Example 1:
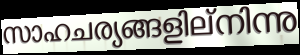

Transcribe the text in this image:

സാഹചര്യങ്ങളില്നിന്നു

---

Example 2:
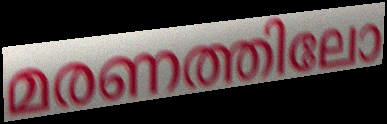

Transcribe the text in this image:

മരണത്തിലോ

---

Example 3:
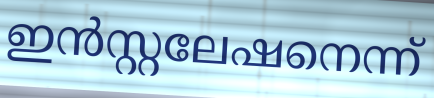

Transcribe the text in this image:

ഇൻസ്റ്റലേഷനെന്ന്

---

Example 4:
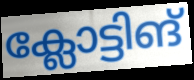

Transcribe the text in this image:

ക്ലോട്ടിങ്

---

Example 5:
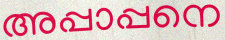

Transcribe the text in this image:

അപ്പാപ്പനെ